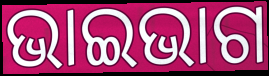
ଭାଇଭାଗ